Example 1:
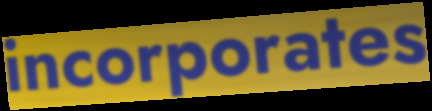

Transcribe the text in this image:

incorporates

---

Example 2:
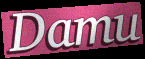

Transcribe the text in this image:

Damu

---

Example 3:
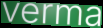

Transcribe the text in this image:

verma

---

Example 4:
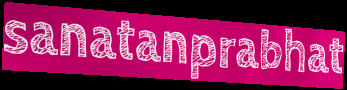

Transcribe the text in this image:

sanatanprabhat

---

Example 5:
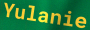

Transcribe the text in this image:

Yulanie